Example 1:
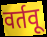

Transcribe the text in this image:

वर्तवू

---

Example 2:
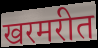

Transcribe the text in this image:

खरमरीत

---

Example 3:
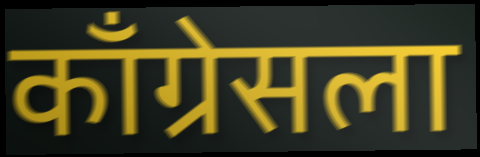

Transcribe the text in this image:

काँग्रेसला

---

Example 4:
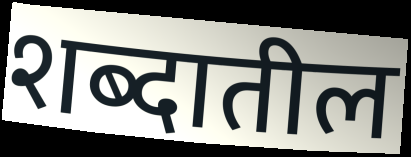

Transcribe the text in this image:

शब्दातील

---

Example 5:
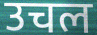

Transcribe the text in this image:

उचल